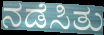
ನಡೆಸಿತು